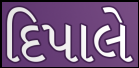
દિપાલે